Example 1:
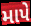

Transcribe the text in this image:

માપે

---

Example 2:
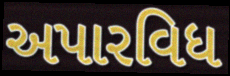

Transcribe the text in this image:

અપારવિધ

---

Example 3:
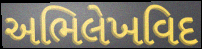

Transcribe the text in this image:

અભિલેખવિદ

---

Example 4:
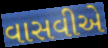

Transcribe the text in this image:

વાસવીએ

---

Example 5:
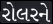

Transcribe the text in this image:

રોલરને